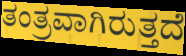
ತಂತ್ರವಾಗಿರುತ್ತದೆ